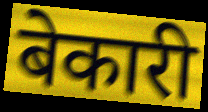
बेकारी